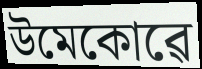
উমেকোৱে